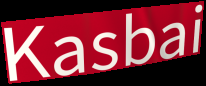
Kasbai